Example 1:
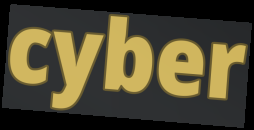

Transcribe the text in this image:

cyber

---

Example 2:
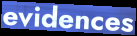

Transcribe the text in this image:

evidences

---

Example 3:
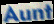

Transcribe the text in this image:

Aunt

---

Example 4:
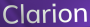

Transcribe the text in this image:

Clarion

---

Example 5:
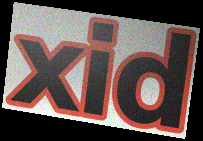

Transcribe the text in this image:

xid